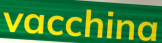
vacchina